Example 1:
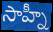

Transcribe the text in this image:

సాహ్నీ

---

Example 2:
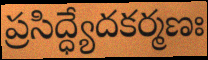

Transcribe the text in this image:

ప్రసిద్ధ్యేదకర్మణః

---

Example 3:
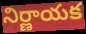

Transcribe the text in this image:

నిర్ణాయక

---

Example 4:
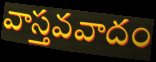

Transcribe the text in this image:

వాస్తవవాదం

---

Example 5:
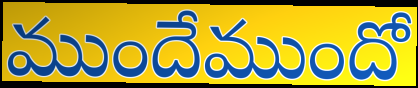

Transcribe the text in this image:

ముందేముందో